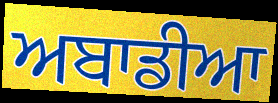
ਅਬਾਡੀਆ